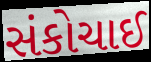
સંકોચાઈ